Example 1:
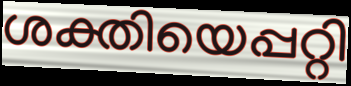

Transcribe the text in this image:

ശക്തിയെപ്പറ്റി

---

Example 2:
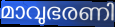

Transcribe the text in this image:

മാവുഭരണി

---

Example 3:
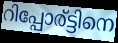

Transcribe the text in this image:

റിപ്പോര്ട്ടിനെ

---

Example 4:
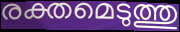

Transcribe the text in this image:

രക്തമെടുത്തു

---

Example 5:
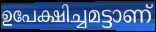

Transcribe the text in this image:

ഉപേക്ഷിച്ചമട്ടാണ്